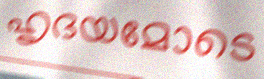
ഹൃദയമോടെ